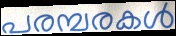
പരമ്പരകൾ